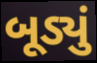
બૂડ્યું